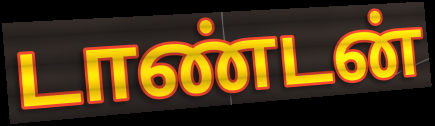
டாண்டன்